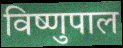
विष्णुपाल